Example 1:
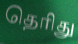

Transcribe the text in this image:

தெரிது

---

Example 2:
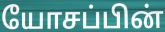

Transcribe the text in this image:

யோசப்பின்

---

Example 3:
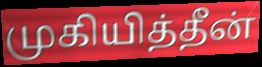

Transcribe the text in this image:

முகியித்தீன்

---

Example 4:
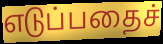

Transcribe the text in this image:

எடுப்பதைச்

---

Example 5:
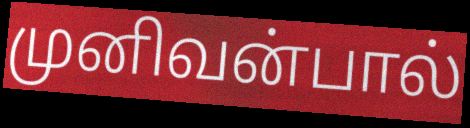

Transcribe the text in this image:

முனிவன்பால்